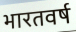
भारतवर्ष